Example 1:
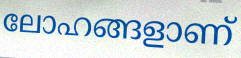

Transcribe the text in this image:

ലോഹങ്ങളാണ്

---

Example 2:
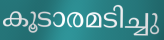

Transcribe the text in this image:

കൂടാരമടിച്ചു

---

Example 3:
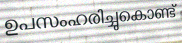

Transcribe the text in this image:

ഉപസംഹരിച്ചുകൊണ്ട്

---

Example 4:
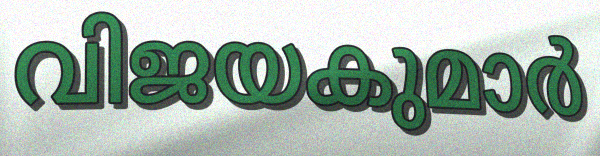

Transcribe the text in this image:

വിജയകുമാർ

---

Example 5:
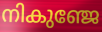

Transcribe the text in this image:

നികുഞ്ജേ